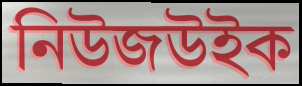
নিউজউইক